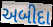
અબીદા